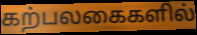
கற்பலகைகளில்